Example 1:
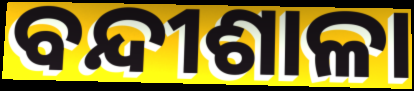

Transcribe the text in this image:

ବନ୍ଦୀଶାଳା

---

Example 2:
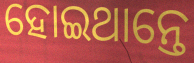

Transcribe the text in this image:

ହୋଇଥାନ୍ତେ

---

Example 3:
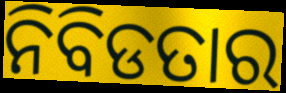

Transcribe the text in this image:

ନିବିଡତାର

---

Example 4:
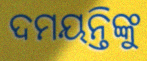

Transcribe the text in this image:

ଦମୟନ୍ତିଙ୍କୁ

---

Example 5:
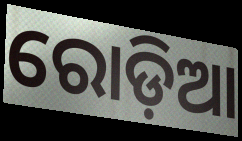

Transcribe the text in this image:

ରୋଡ଼ିଆ